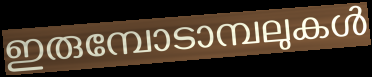
ഇരുമ്പോടാമ്പലുകൾ